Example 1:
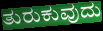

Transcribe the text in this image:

ತುರುಕುವುದು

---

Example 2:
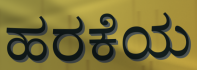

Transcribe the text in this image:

ಹರಕೆಯ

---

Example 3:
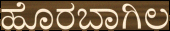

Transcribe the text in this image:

ಹೊರಬಾಗಿಲ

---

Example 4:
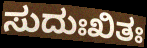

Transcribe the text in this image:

ಸುದುಃಖಿತಃ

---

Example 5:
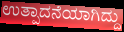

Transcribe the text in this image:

ಉತ್ಪಾದನೆಯಾಗಿದ್ದು